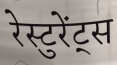
रेस्टुरेंट्स